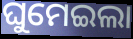
ଘୁମେଇଲା